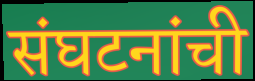
संघटनांची